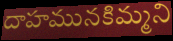
దాహమునకిమ్మని